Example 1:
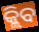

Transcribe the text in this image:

କ୍ଲିବ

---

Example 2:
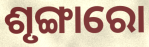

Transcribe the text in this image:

ଶୃଙ୍ଗାରୋ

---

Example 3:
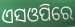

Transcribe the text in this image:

ଏସଓପିରେ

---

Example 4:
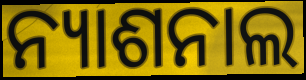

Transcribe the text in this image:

ନ୍ୟାଶନାଲ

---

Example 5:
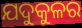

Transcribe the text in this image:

ଯଦୁକୁଳର